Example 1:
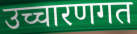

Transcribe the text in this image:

उच्चारणगत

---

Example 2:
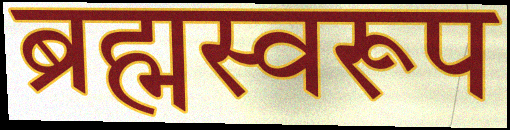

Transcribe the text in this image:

ब्रह्मस्वरूप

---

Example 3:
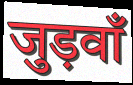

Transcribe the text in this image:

जुड़वाँ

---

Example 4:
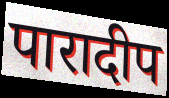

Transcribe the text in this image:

पारादीप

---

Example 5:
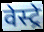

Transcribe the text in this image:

वेस्ट्रे